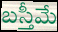
బస్తీమే